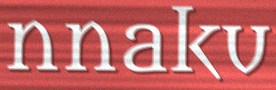
nnaku